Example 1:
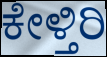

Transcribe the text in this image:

ಕೇಳ್ತಿರಿ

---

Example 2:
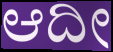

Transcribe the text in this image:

ಆದೀ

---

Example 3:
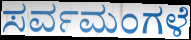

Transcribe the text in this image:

ಸರ್ವಮಂಗಳೆ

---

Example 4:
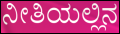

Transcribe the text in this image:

ನೀತಿಯಲ್ಲಿನ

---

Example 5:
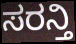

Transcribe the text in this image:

ಸರನ್ತಿ